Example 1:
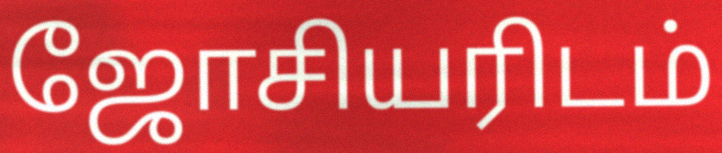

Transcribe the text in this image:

ஜோசியரிடம்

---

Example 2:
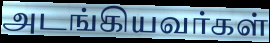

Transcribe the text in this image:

அடங்கியவர்கள்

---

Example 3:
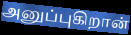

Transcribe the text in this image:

அனுப்புகிறான்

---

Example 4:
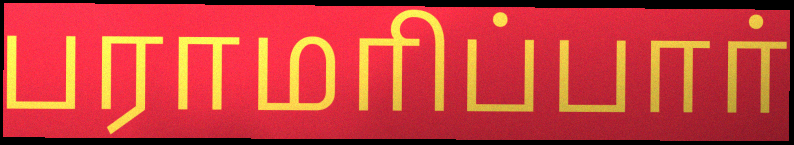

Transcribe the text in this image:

பராமரிப்பார்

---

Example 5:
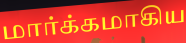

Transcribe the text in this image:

மார்க்கமாகிய